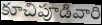
కూచిపూడివారి